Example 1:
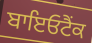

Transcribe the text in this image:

ਬਾਇਓਟੈਂਕ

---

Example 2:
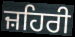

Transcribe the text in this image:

ਜ਼ਹਿਰੀ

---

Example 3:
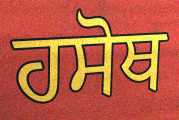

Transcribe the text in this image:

ਹਸੋਥ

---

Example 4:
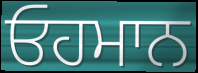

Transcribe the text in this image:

ਓਹਮਾਨ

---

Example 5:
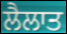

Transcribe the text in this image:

ਲੈਲਾਤ